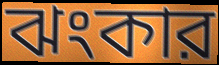
ঝংকার